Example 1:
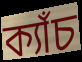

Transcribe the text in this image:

ক্যাঁচ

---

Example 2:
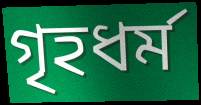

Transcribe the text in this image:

গৃহধর্ম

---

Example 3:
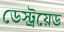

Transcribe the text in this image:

ডেস্ট্রয়েড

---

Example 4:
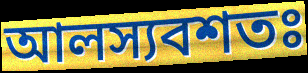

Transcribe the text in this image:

আলস্যবশতঃ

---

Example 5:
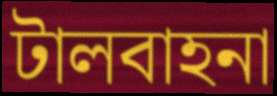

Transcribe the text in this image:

টালবাহনা